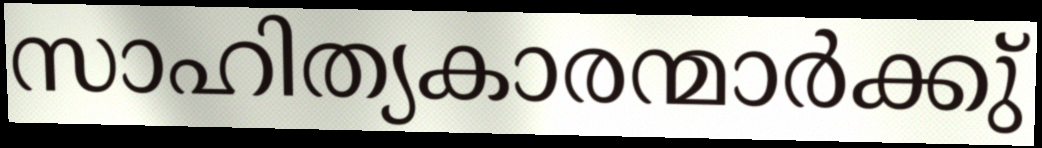
സാഹിത്യകാരന്മാർക്കു്